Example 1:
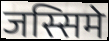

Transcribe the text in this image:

जस्सिमे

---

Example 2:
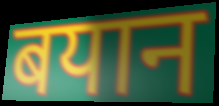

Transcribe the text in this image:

बयान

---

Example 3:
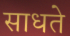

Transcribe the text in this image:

साधते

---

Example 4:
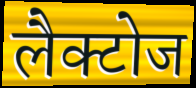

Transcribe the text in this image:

लैक्टोज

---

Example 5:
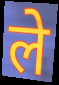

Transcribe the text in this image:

ले